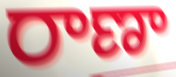
రాణా